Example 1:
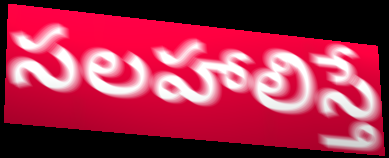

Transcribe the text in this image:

సలహాలిస్తే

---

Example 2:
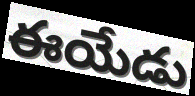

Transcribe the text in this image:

ఈయేడు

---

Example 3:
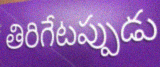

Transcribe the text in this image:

తిరిగేటప్పుడు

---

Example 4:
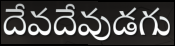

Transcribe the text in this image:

దేవదేవుడగు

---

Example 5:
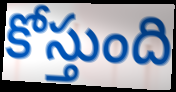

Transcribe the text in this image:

కోస్తుంది